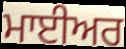
ਮਾਈਅਰ